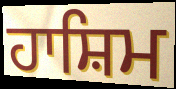
ਹਾਸ਼ਿਮ